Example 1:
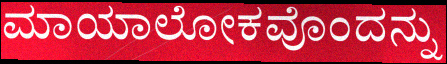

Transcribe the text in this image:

ಮಾಯಾಲೋಕವೊಂದನ್ನು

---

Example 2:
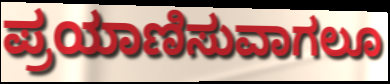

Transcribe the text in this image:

ಪ್ರಯಾಣಿಸುವಾಗಲೂ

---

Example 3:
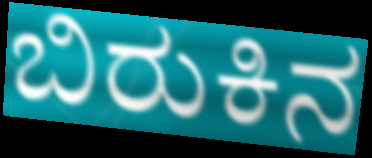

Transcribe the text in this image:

ಬಿರುಕಿನ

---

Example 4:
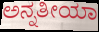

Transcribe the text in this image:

ಅನ್ನತೀಯಾ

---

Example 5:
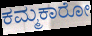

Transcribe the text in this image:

ಕಮ್ಮಕಾರೋ